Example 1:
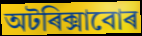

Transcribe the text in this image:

অটৰিক্সাবোৰ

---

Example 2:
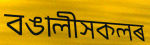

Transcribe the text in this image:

বঙালীসকলৰ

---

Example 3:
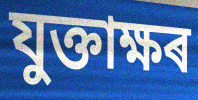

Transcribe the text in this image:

যুক্তাক্ষৰ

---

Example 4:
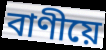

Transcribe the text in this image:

বাণীয়ে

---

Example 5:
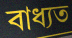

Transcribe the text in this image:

বাধ্যত